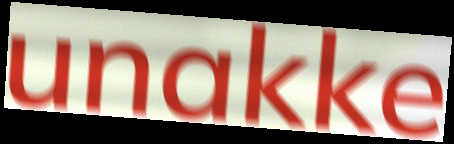
unakke